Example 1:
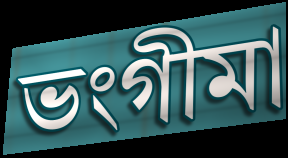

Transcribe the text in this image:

ভংগীমা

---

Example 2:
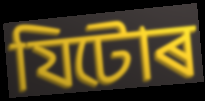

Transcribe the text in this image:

যিটোৰ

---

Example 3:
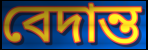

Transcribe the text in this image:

বেদান্ত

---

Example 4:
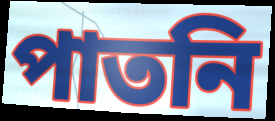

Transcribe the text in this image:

পাতনি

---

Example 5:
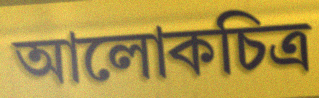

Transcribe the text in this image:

আলোকচিত্ৰ